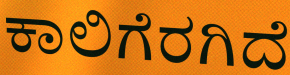
ಕಾಲಿಗೆರಗಿದೆ